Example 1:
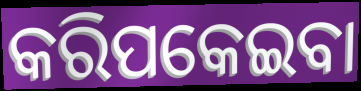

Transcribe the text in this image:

କରିପକେଇବା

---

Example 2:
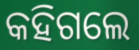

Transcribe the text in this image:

କହିଗଲେ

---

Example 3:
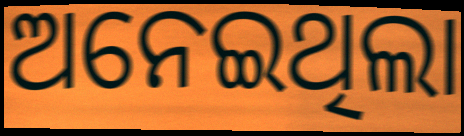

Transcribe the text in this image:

ଅନେଇଥିଲା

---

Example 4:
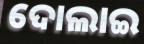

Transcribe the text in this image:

ଦୋଲାଇ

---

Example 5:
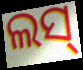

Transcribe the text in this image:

ଲସ୍